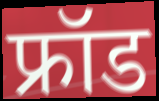
फ्रॉड